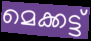
മെക്കട്ട്